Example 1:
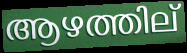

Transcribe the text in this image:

ആഴത്തില്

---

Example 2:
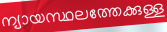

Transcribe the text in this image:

ന്യായസ്ഥലത്തേക്കുള്ള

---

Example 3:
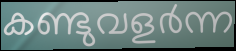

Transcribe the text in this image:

കണ്ടുവളർന്ന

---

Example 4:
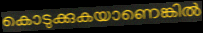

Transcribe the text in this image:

കൊടുക്കുകയാണെങ്കിൽ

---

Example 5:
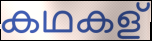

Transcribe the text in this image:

കഥകള്